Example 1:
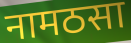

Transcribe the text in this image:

नामठसा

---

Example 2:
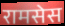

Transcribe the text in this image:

रामसेस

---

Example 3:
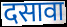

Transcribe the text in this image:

दसावा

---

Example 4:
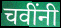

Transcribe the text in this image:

चवींनी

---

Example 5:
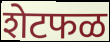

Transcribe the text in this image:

शेटफळ